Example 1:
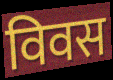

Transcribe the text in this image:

विवस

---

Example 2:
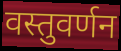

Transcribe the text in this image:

वस्तुवर्णन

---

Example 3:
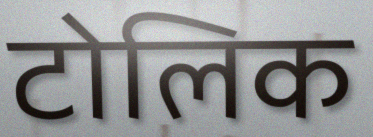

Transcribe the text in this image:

टोलिक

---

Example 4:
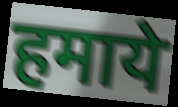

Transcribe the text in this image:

हमाये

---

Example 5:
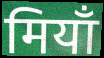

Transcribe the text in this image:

मियाँ